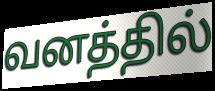
வனத்தில்